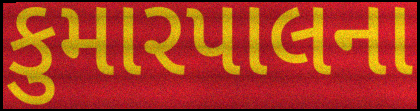
કુમારપાલના